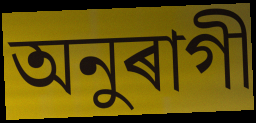
অনুৰাগী